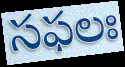
సఫలః